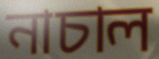
নাচাল